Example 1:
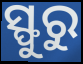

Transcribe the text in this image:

ସ୍ଫୁରୁ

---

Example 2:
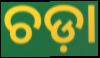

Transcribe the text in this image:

ଚଡ଼ା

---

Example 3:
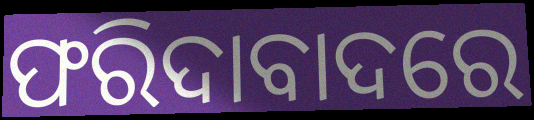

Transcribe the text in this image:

ଫରିଦାବାଦରେ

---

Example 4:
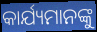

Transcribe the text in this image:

କାର୍ଯ୍ୟମାନଙ୍କୁ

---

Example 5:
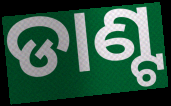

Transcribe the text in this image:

ଡାଣ୍ଟ